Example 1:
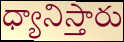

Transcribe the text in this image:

ధ్యానిస్తారు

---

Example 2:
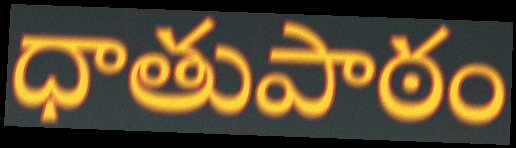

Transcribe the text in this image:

ధాతుపాఠం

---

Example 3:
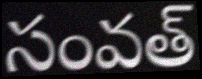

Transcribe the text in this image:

సంవత్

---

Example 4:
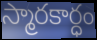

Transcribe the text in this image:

స్మారకార్ధం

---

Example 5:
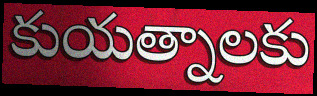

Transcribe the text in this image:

కుయత్నాలకు